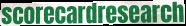
scorecardresearch